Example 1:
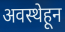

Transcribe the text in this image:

अवस्थेहून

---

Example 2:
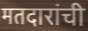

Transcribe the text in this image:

मतदारांची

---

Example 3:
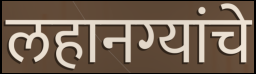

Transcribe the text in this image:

लहानग्यांचे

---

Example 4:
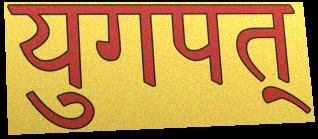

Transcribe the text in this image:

युगपत्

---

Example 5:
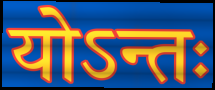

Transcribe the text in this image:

योऽन्तः